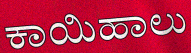
ಕಾಯಿಹಾಲು